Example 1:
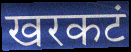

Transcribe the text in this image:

खरकटं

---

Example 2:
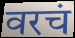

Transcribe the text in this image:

वरचं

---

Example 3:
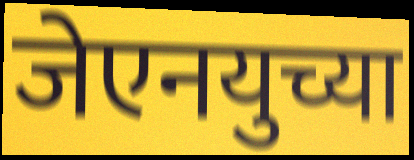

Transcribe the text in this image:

जेएनयुच्या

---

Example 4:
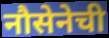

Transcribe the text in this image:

नौसेनेची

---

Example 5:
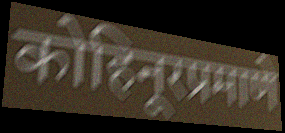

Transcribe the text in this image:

कोहिनूरप्रमाणे